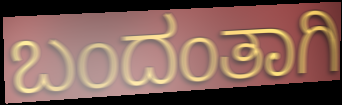
ಬಂದಂತಾಗಿ